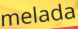
melada